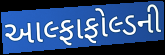
આલ્ફાફોલ્ડની